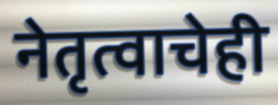
नेतृत्वाचेही